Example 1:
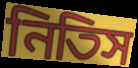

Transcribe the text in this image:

নিতিস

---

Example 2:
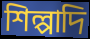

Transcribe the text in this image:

শিল্পাদি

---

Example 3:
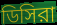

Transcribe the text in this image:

ডিসিরা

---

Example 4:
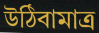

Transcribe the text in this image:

উঠিবামাত্র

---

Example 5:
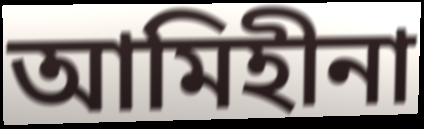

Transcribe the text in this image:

আমিহীনা